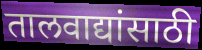
तालवाद्यांसाठी